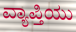
ವ್ಯಾಪ್ತಿಯು